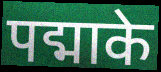
पद्माके